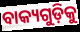
ବାକ୍ୟଗୁଡ଼ିକୁ